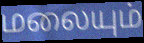
மலையும்